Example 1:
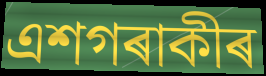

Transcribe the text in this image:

এশগৰাকীৰ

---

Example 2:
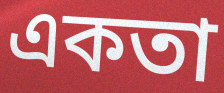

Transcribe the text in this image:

একতা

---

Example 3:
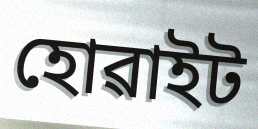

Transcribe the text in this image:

হোৱাইট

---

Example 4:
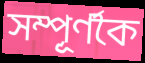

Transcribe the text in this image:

সম্পূৰ্ণকৈ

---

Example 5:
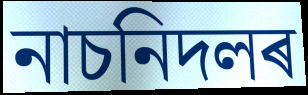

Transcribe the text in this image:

নাচনিদলৰ